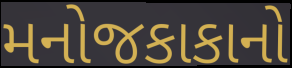
મનોજકાકાનો